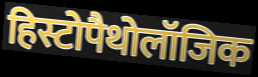
हिस्टोपैथोलॉजिक